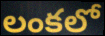
లంకలో